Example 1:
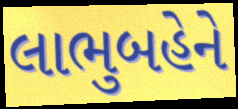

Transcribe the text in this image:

લાભુબહેને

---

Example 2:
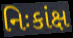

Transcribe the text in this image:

નિઃકાંક્ષ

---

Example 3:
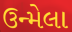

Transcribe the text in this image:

ઉન્મેલા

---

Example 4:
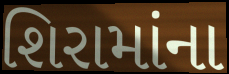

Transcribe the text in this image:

શિરામાંના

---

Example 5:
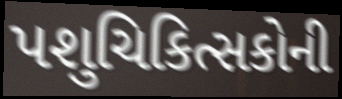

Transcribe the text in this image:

પશુચિકિત્સકોની